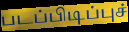
படப்பிடிப்புச்